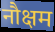
नौक्षम